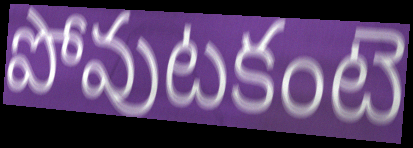
పోవుటకంటె